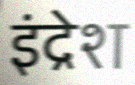
इंद्रेश